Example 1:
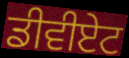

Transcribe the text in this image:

ਡੀਵੀਏਟ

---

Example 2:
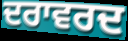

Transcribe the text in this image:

ਦਰਾਵਰਦ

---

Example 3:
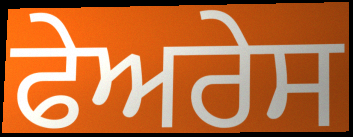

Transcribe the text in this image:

ਫੇਅਰੇਸ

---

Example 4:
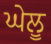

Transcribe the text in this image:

ਘੇਲੂ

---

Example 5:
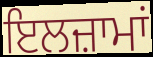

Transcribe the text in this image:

ਇਲਜ਼ਾਮਾਂ